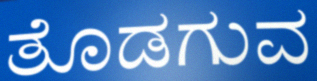
ತೊಡಗುವ